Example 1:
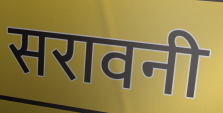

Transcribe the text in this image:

सरावनी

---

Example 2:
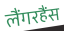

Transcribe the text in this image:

लैंगरहैंस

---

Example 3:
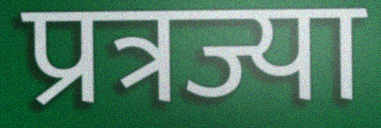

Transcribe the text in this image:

प्रत्रज्या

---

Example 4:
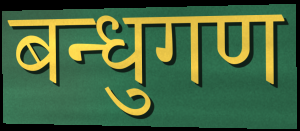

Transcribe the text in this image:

बन्धुगण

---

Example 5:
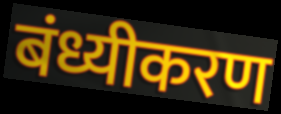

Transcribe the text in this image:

बंध्यीकरण